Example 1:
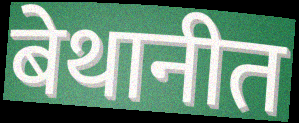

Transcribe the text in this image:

बेथानीत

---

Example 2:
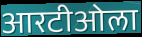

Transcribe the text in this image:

आरटीओला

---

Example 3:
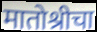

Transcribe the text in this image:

मातोश्रीचा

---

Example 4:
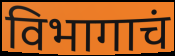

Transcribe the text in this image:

विभागाचं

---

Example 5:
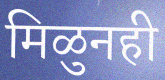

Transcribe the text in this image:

मिळुनही